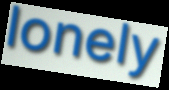
lonely